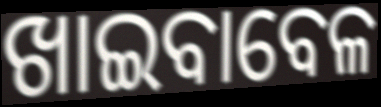
ଖାଇବାବେଳ